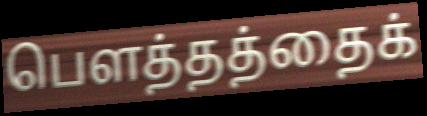
பௌத்தத்தைக்